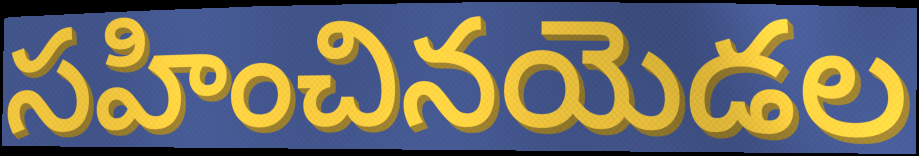
సహించినయెడల